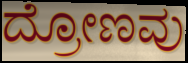
ದ್ರೋಣವು